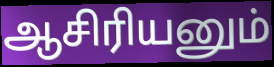
ஆசிரியனும்